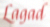
Lagad